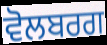
ਵੋਲਬਰਗ